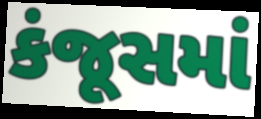
કંજૂસમાં